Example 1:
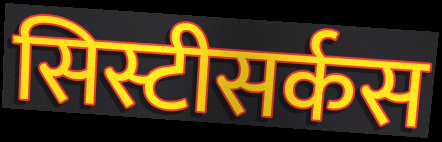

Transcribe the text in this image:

सिस्टीसर्कस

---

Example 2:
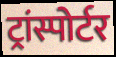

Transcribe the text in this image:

ट्रांस्पोर्टर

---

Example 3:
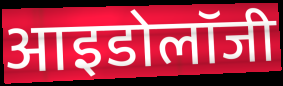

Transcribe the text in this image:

आइडोलॉजी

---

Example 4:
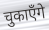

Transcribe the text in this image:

चुकाएँगे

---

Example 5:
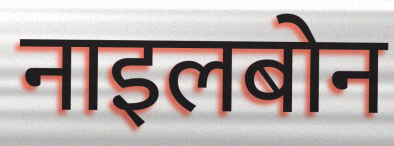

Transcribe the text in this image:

नाइलबोन